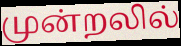
முன்றலில்